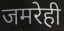
जमरेही